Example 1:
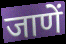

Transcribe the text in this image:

जाणें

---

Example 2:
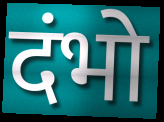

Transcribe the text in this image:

दंभो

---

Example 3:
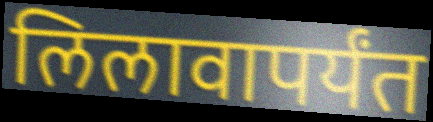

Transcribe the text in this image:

लिलावापर्यंत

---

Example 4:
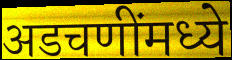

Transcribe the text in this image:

अडचणींमध्ये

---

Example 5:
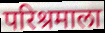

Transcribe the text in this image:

परिश्रमाला